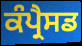
ਕੰਪ੍ਰੈਸਡ